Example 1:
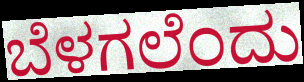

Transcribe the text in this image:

ಬೆಳಗಲೆಂದು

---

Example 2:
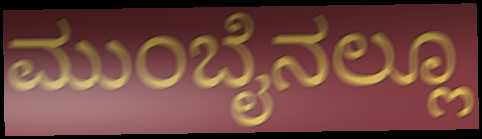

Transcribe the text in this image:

ಮುಂಬೈನಲ್ಲೂ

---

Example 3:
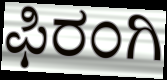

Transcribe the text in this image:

ಫಿರಂಗಿ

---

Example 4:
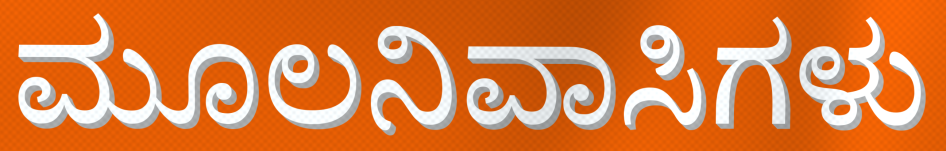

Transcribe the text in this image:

ಮೂಲನಿವಾಸಿಗಳು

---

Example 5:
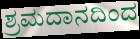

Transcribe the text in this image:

ಶ್ರಮದಾನದಿಂದ